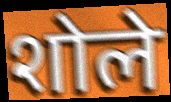
शोले